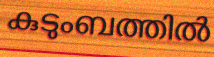
കുടുംബത്തിൽ